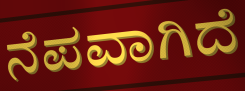
ನೆಪವಾಗಿದೆ